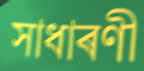
সাধাৰণী